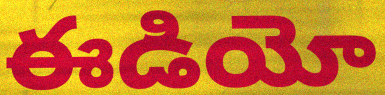
ఈడియో